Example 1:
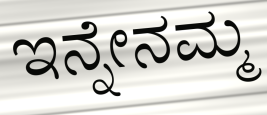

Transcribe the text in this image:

ಇನ್ನೇನಮ್ಮ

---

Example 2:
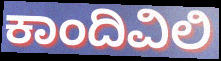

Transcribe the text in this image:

ಕಾಂದಿವಿಲಿ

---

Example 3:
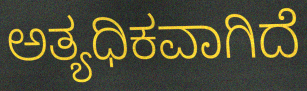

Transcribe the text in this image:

ಅತ್ಯಧಿಕವಾಗಿದೆ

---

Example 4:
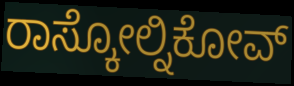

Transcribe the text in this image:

ರಾಸ್ಕೋಲ್ನಿಕೋವ್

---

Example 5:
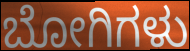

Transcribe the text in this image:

ಬೋಗಿಗಳು